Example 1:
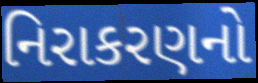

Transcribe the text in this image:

નિરાકરણનો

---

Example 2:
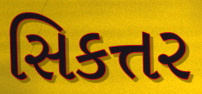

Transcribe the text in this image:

સિકત્તર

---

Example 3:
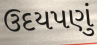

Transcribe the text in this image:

ઉદયપણું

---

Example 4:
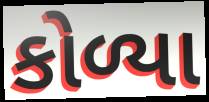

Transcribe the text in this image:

કોળ્યા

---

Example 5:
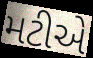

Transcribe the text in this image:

મટીએ